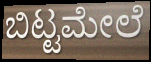
ಬಿಟ್ಟಮೇಲೆ